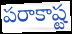
పరాకాష్ట